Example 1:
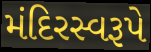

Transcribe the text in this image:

મંદિરસ્વરૂપે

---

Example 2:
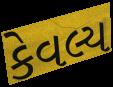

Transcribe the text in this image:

કેવલ્ય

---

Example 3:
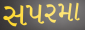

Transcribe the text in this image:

સપરમા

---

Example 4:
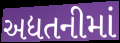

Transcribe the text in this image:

અદ્યતનીમાં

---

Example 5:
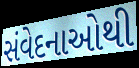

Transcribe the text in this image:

સંવેદનાઓથી